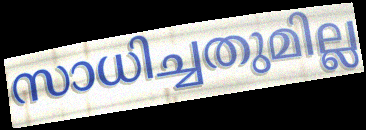
സാധിച്ചതുമില്ല